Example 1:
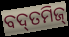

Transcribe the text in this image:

ବଦ୍‌ତମିଜ୍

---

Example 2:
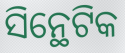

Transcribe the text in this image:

ସିନ୍ଥେଟିକ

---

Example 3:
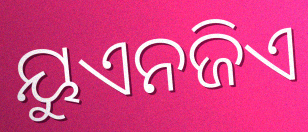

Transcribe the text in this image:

ୟୁଏନଜିଏ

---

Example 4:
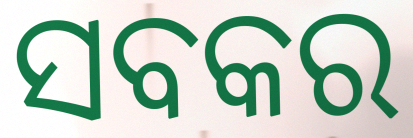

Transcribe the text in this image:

ସବକର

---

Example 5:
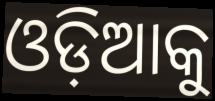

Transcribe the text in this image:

ଓଡ଼ିଆକୁ